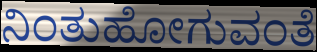
ನಿಂತುಹೋಗುವಂತೆ